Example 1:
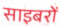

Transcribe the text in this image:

साइबरों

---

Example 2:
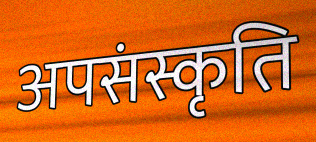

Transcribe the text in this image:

अपसंस्कृति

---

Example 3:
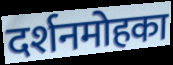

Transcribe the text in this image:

दर्शनमोहका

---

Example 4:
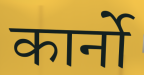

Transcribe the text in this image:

कार्नो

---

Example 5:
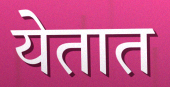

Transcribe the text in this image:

येतात